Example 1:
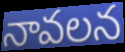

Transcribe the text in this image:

నావలన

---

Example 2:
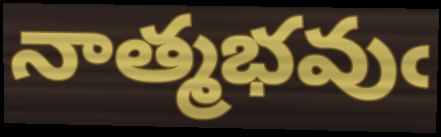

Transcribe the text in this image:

నాత్మభవుఁ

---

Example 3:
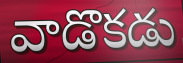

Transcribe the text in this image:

వాడొకడు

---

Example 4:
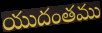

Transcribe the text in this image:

యుదంతము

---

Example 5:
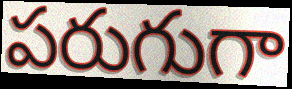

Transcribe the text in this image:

పరుగుగా